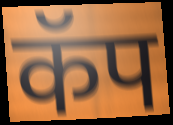
कॅप